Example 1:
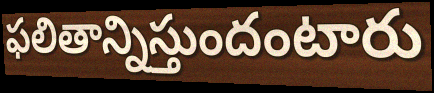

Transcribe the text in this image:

ఫలితాన్నిస్తుందంటారు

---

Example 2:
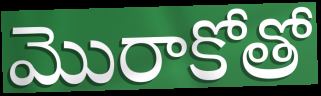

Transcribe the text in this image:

మొరాకోతో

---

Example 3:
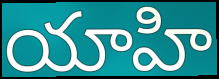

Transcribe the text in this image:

యాహి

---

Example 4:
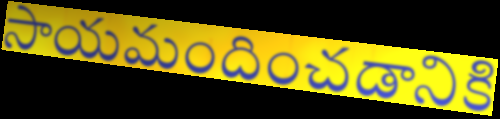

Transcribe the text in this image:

సాయమందించడానికి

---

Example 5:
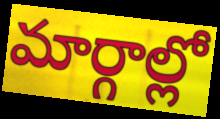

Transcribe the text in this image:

మార్గాల్లో